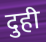
दुही